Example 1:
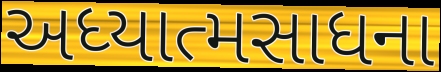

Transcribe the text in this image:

અધ્યાત્મસાધના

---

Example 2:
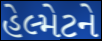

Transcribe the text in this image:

હેલ્મેટને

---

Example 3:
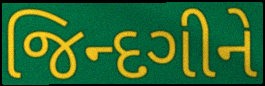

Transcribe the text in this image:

જિન્દગીને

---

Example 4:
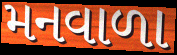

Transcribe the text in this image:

મનવાળા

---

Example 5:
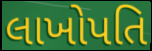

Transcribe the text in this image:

લાખોપતિ